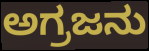
ಅಗ್ರಜನು